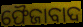
ଫୈଜାବାଦ